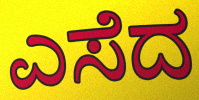
ಎಸೆದ